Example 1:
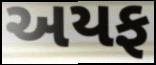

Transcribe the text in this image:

અયફ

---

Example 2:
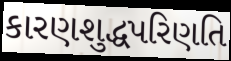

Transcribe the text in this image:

કારણશુદ્ધપરિણતિ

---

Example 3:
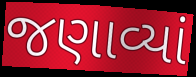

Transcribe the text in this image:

જણાવ્યાં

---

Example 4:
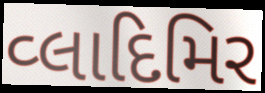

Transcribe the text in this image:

વ્લાદિમિર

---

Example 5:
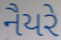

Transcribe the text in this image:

નૈયરે